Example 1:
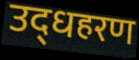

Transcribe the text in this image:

उद्धहरण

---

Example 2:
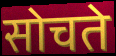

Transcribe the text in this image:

सोचते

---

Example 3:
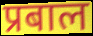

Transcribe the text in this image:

प्रबाल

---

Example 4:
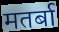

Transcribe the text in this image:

मतर्बा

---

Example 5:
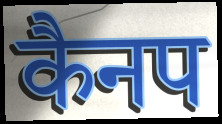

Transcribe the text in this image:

कैनप